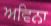
ਅਵਿਨਾ